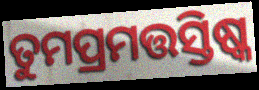
ତୁମପ୍ରମତ୍ତସ୍ତିଷ୍କ